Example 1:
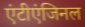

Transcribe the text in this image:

एंटीएंजिनल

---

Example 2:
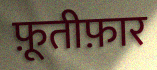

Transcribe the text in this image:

फ़ूतीफ़ार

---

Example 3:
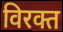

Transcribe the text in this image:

विरक्त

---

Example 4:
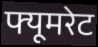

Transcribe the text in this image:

फ्यूमरेट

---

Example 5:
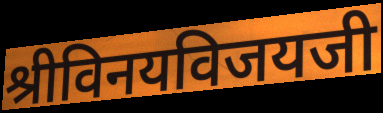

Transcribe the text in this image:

श्रीविनयविजयजी